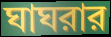
ঘাঘরার